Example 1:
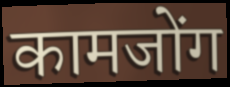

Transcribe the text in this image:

कामजोंग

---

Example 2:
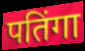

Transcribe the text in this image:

पतिंगा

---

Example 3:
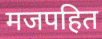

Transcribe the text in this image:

मजपहित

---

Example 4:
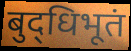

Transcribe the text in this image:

बुद्धिभूतं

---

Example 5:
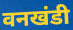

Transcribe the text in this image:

वनखंडी